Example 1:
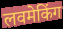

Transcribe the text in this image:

लवमेकिंग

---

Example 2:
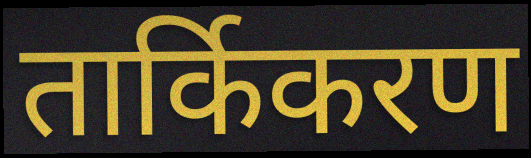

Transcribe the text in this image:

तार्किकरण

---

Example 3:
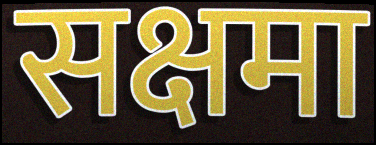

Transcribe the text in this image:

सक्षमा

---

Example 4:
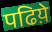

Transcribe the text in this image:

पढिय़े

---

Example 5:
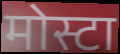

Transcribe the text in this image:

मोस्टा